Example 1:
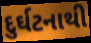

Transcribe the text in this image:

દુર્ઘટનાથી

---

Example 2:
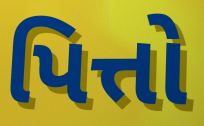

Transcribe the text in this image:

પિત્તો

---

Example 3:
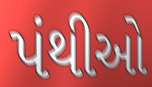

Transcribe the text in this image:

પંથીઓ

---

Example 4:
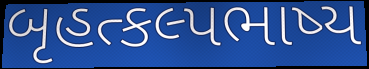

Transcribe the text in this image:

બૃહત્કલ્પભાષ્ય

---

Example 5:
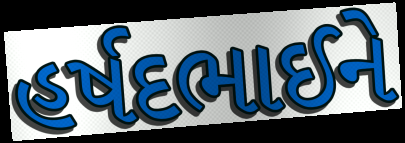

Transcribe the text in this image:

હર્ષદભાઈને